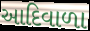
આદિવાળા